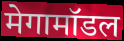
मेगामॉडल